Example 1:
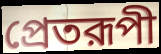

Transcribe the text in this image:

প্রেতরূপী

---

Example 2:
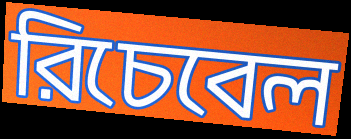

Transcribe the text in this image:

রিচেবেল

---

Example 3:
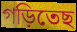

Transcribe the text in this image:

গড়িতেছ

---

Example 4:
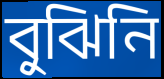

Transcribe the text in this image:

বুঝিনি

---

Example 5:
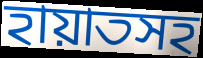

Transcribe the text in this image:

হায়াতসহ